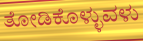
ತೋಡಿಕೊಳ್ಳುವಳು